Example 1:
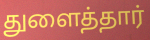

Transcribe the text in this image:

துளைத்தார்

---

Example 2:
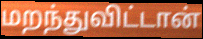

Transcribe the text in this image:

மறந்துவிட்டான்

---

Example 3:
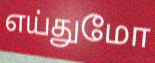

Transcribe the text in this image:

எய்துமோ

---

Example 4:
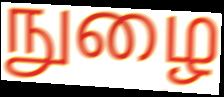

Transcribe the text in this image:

நுழை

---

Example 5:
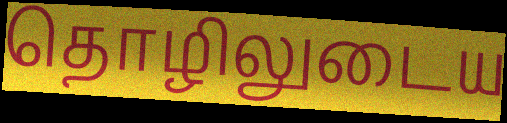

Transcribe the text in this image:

தொழிலுடைய